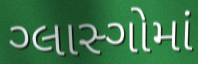
ગ્લાસ્ગોમાં